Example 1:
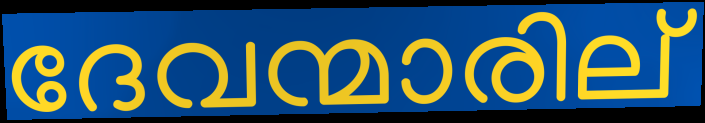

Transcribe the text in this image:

ദേവന്മാരില്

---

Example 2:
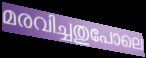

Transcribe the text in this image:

മരവിച്ചതുപോലെ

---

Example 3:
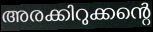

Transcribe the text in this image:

അരക്കിറുക്കന്റെ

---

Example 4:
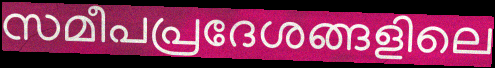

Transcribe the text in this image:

സമീപപ്രദേശങ്ങളിലെ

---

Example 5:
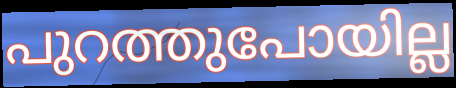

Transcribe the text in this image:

പുറത്തുപോയില്ല